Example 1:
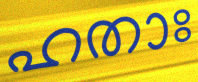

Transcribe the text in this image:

ഹതാഃ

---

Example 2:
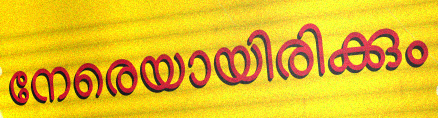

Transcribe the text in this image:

നേരെയായിരിക്കും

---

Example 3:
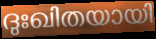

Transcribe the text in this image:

ദുഃഖിതയായി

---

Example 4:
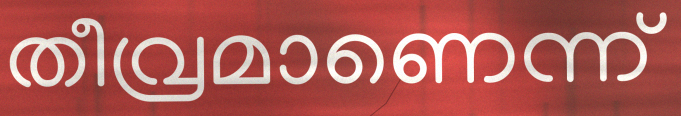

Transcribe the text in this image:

തീവ്രമാണെന്ന്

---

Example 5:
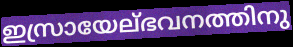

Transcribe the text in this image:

ഇസ്രായേല്ഭവനത്തിനു